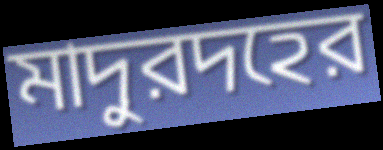
মাদুরদহের